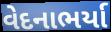
વેદનાભર્યા